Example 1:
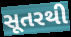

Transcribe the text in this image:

સૂતરથી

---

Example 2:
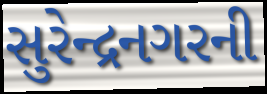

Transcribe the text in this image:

સુરેન્દ્રનગરની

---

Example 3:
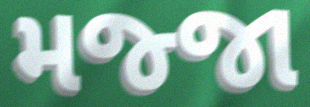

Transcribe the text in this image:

મજ્જા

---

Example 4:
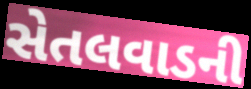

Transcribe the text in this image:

સેતલવાડની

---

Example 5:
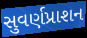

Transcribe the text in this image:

સુવર્ણપ્રાશન